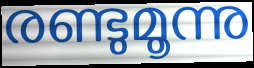
രണ്ടുമൂന്നു